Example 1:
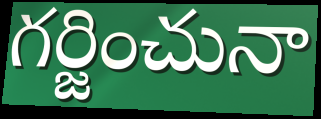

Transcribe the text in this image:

గర్జించునా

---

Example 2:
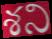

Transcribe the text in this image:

శని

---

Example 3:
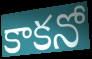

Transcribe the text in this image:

కాకనో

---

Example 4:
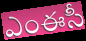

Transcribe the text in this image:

ఎంఈసీ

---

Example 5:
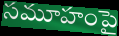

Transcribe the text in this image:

సమూహంపై